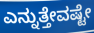
ಎನ್ನುತ್ತೇವಷ್ಟೇ